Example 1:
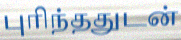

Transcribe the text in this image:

புரிந்ததுடன்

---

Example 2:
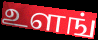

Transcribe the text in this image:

உளங்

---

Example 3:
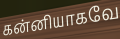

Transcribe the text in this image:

கன்னியாகவே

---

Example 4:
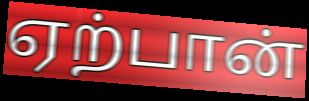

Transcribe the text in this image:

ஏற்பான்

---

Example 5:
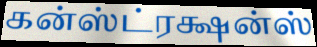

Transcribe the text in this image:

கன்ஸ்ட்ரக்ஷன்ஸ்